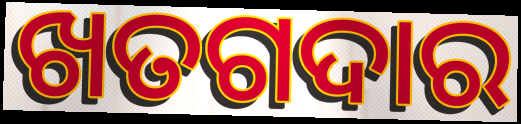
ଖତଗଦାର